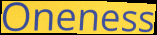
Oneness